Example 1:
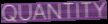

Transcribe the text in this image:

QUANTITY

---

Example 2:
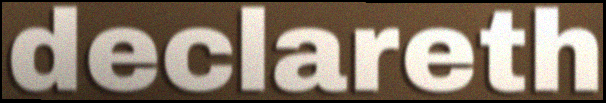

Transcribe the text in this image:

declareth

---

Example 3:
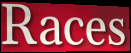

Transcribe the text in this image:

Races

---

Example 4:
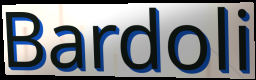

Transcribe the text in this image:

Bardoli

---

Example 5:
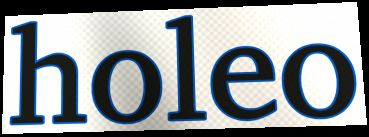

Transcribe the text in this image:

holeo